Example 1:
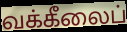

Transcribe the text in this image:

வக்கீலைப்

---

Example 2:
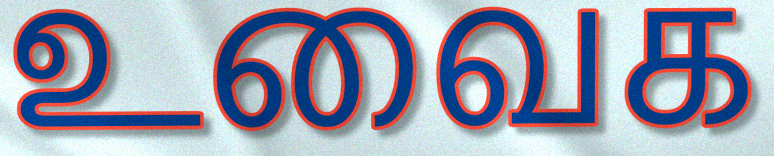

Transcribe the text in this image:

உவைக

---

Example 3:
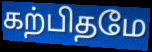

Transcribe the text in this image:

கற்பிதமே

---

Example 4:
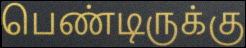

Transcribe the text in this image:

பெண்டிருக்கு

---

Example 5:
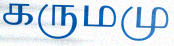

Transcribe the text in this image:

கருமமு